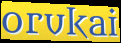
orukai